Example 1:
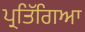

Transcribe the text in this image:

ਪ੍ਰਤਿੱਗਿਆ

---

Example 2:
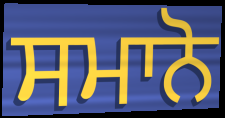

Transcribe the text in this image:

ਸਮਾਨੋ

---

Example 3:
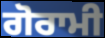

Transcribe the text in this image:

ਗੋਰਾਮੀ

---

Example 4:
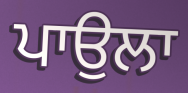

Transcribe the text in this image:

ਪਾਉਲਾ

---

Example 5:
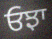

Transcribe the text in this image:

ਓਝਾ